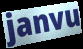
janvu